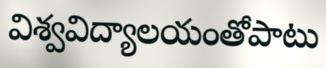
విశ్వవిద్యాలయంతోపాటు